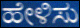
ಹೇಳಿಸು